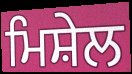
ਮਿਸ਼ੇਲ